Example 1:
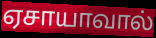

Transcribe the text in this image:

ஏசாயாவால்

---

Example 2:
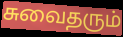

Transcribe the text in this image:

சுவைதரும்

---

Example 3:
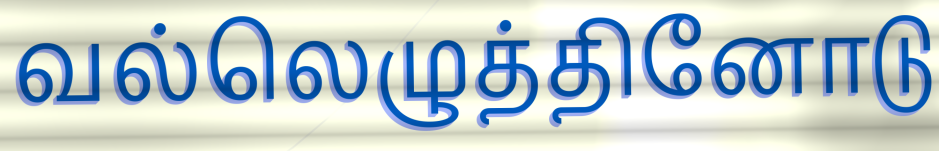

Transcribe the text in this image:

வல்லெழுத்தினோடு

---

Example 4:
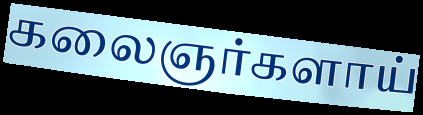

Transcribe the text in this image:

கலைஞர்களாய்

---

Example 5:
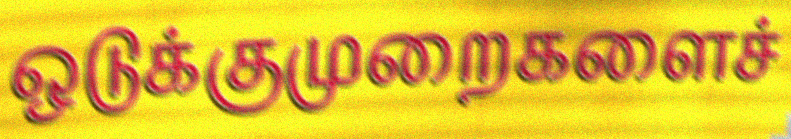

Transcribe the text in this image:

ஒடுக்குமுறைகளைச்